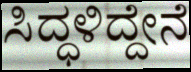
ಸಿದ್ಧಳಿದ್ದೇನೆ